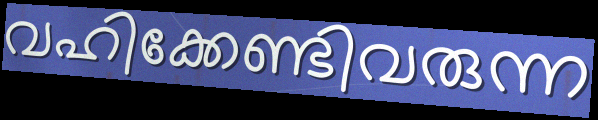
വഹിക്കേണ്ടിവരുന്ന